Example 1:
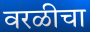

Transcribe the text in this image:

वरळीचा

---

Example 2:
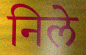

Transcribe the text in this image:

निले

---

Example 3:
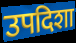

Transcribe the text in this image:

उपदिशा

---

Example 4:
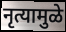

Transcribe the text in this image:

नृत्यामुळे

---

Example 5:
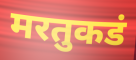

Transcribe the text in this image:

मरतुकडं